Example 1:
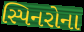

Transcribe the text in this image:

સ્પિનરોના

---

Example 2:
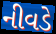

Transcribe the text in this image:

નીવડે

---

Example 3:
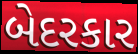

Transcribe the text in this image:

બેદરકાર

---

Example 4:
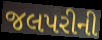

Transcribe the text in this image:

જલપરીની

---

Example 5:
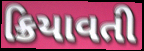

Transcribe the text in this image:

ક્રિયાવતી